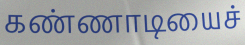
கண்ணாடியைச்